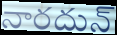
నారదున్